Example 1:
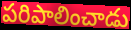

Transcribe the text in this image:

పరిపాలించాడు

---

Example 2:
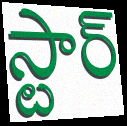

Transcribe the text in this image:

స్టార్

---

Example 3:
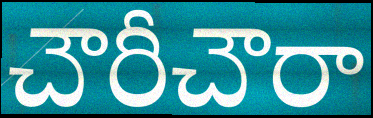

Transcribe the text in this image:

చౌరీచౌరా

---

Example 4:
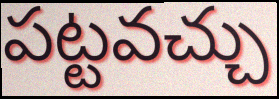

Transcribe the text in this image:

పట్టవచ్చు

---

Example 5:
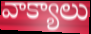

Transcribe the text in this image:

వాక్యాలు